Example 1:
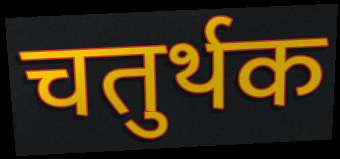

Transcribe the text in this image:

चतुर्थक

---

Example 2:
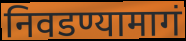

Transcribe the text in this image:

निवडण्यामागं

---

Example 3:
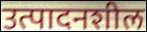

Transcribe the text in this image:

उत्पादनशील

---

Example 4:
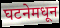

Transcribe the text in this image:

घटनेमधून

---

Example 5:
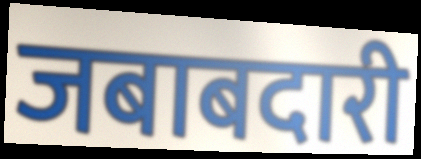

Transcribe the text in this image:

जबाबदारी